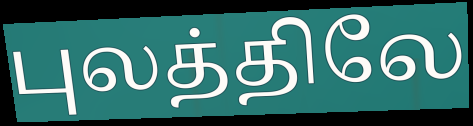
புலத்திலே